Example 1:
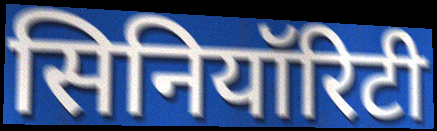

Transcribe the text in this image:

सिनियॉरिटी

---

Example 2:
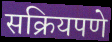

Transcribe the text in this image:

सक्रियपणे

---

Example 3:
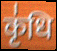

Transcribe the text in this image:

कृ॑धि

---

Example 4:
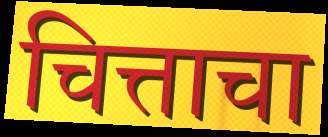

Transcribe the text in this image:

चित्ताचा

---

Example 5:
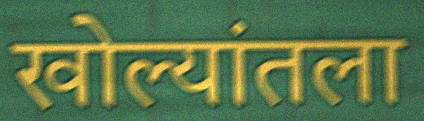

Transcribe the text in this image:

खोल्यांतला